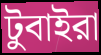
টুবাইরা